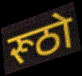
रूठो